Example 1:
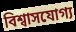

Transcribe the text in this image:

বিশ্বাসযোগ্য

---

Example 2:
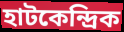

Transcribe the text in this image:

হাটকেন্দ্রিক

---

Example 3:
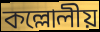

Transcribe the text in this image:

কল্লোলীয়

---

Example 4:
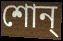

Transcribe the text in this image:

শোন্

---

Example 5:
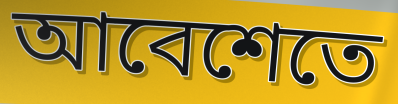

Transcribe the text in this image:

আবেশেতে